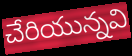
చేరియున్నవి